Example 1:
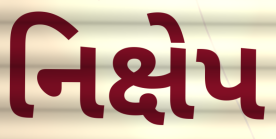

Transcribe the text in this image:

નિક્ષેપ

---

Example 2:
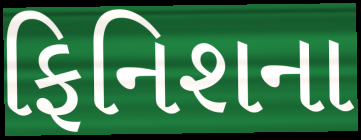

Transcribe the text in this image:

ફિનિશના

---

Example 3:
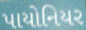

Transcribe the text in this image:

પાયોનિયર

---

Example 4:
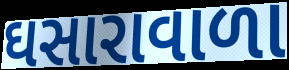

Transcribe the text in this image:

ઘસારાવાળા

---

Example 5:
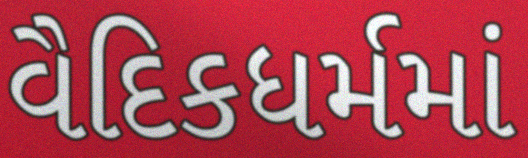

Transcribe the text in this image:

વૈદિકધર્મમાં